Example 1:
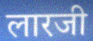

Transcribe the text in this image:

लारजी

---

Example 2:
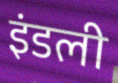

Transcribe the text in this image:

इंडली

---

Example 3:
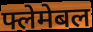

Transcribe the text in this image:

फ्लेमेबल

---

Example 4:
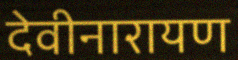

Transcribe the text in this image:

देवीनारायण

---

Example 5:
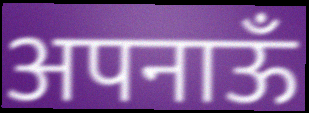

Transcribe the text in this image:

अपनाऊँ